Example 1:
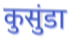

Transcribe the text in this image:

कुसुंडा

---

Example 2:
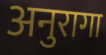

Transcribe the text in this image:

अनुरागा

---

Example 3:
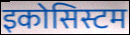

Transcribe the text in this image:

इकोसिस्टम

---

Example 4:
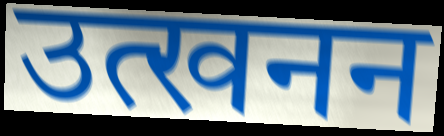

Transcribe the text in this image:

उत्‍खनन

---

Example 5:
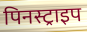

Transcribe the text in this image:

पिनस्ट्राइप